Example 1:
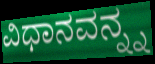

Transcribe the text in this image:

ವಿಧಾನವನ್ನ್ನ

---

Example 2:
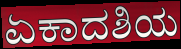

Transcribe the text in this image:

ಏಕಾದಶಿಯ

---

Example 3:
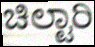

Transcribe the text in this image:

ಚಿಲ್ಟಾರಿ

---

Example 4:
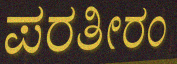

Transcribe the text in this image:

ಪರತೀರಂ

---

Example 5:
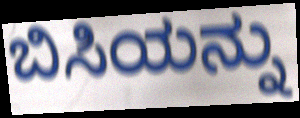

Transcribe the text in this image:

ಬಿಸಿಯನ್ನು